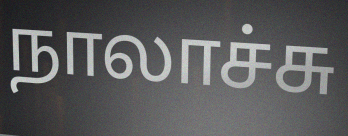
நாலாச்சு